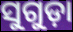
ସୁଗୁଡ଼ା